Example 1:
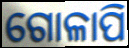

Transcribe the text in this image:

ଗୋଳାପି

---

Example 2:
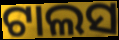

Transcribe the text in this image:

ଟାଲସ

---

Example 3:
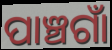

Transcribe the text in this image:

ପାଞ୍ଚଗାଁ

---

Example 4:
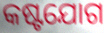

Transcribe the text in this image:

କଷ୍ଟଯୋଗ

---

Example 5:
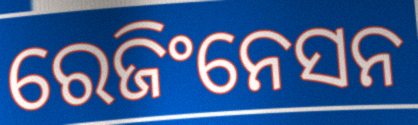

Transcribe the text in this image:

ରେଜିଂନେସନ